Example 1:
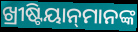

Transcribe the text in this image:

ଖ୍ରୀଷ୍ଟିୟାନ୍‌ମାନଙ୍କ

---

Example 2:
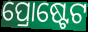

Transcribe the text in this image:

ପ୍ରୋଷ୍ଟେଟ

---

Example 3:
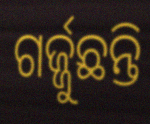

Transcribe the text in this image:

ଗର୍ଜ୍ଜୁଛନ୍ତି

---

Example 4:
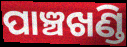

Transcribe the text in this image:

ପାଞ୍ଚଖଣ୍ଡି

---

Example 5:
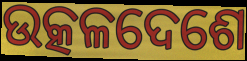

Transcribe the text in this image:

ଉତ୍କଳଦେଶେ